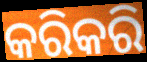
କରିକରି